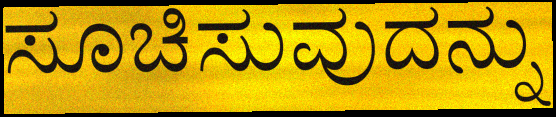
ಸೂಚಿಸುವುದನ್ನು